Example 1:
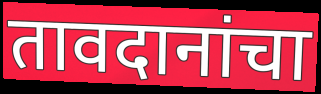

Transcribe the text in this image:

तावदानांचा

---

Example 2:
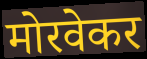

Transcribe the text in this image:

मोरवेकर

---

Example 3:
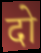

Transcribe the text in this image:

दो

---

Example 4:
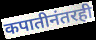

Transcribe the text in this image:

कपातीनंतरही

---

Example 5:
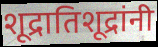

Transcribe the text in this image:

शूद्रातिशूद्रांनी